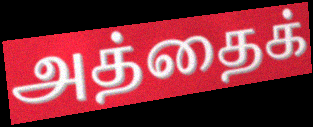
அத்தைக்